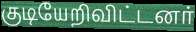
குடியேறிவிட்டனர்